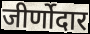
जीर्णोदार